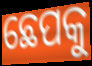
ଛେପକୁ